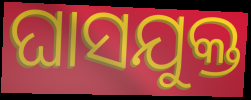
ଘାସଯୁକ୍ତ